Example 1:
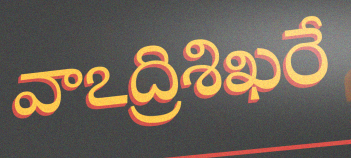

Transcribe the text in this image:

వాఽద్రిశిఖరే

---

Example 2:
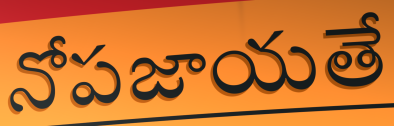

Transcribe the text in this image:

నోపజాయతే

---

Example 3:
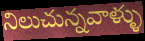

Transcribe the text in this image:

నిలుచున్నవాళ్ళు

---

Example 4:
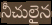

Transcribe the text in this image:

నీచులైన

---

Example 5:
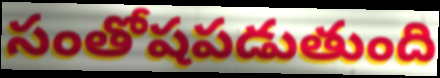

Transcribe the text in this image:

సంతోషపడుతుంది